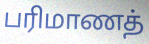
பரிமாணத்